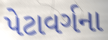
પેટાવર્ગના